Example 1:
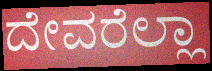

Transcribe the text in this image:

ದೇವರೆಲ್ಲಾ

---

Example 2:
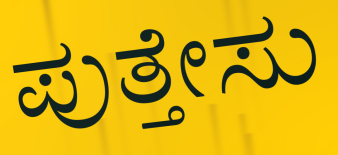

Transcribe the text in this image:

ಪುತ್ತೇಸು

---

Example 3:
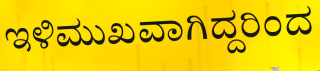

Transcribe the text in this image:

ಇಳಿಮುಖವಾಗಿದ್ದರಿಂದ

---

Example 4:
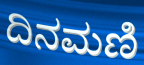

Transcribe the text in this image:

ದಿನಮಣಿ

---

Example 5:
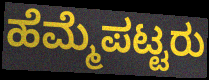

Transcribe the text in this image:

ಹೆಮ್ಮೆಪಟ್ಟರು